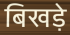
बिखड़े